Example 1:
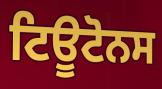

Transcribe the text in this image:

ਟਿਊਟੋਨਸ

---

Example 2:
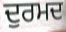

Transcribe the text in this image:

ਦੁਰਮਦ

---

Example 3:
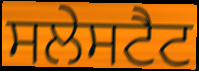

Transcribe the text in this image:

ਸਲੇਸਟੈਟ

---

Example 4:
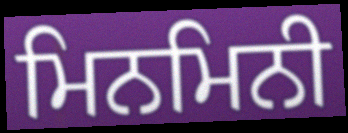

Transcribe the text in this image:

ਮਿਨਮਿਨੀ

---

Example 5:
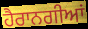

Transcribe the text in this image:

ਹੈਰਾਨਗੀਆਂ